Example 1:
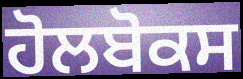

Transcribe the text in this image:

ਹੋਲਬੋਕਸ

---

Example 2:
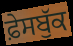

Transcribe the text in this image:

ਫ਼ੇਸਬੁੱਕ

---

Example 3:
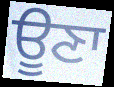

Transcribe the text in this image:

ਊਣਾ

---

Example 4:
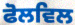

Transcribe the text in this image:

ਫੋਲਵਿਲ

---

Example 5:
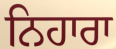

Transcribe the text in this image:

ਨਿਹਾਰਾ